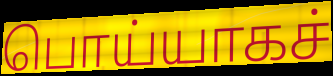
பொய்யாகச்